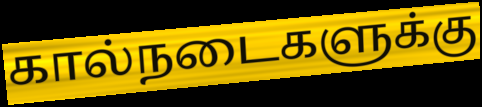
கால்நடைகளுக்கு